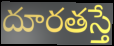
దూరతస్తే